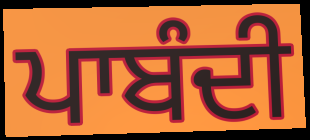
ਪਾਬੰਦੀ